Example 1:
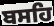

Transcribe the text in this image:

ਬਸਹਿ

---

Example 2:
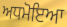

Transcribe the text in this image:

ਅਧਮੋਇਆ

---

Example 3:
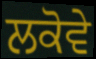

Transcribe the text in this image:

ਲਕੋਵੇ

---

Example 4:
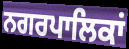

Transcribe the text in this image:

ਨਗਰਪਾਲਿਕਾਂ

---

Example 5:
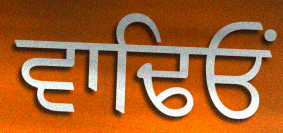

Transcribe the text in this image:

ਵਾਢਿਓਂ